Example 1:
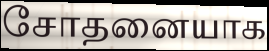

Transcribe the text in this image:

சோதனையாக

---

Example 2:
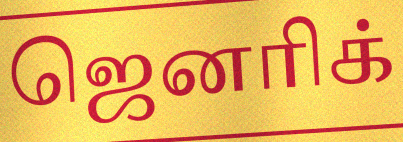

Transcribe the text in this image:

ஜெனரிக்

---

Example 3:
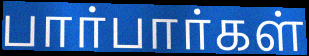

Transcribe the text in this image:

பார்பார்கள்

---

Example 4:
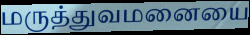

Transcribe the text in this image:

மருத்துவமனையை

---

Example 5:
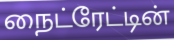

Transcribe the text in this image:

நைட்ரேட்டின்